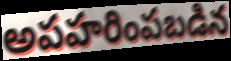
అపహరింపబడిన